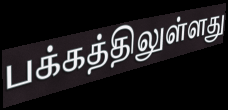
பக்கத்திலுள்ளது